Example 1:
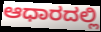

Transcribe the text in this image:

ಆಧಾರದಲ್ಲಿ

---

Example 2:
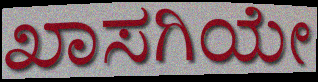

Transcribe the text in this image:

ಖಾಸಗಿಯೇ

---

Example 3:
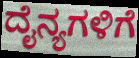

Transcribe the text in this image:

ದೈನ್ಯಗಳಿಗೆ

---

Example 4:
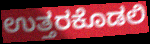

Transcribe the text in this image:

ಉತ್ತರಕೊಡಲಿ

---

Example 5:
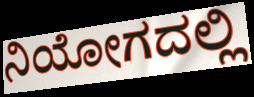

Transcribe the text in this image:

ನಿಯೋಗದಲ್ಲಿ